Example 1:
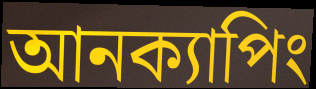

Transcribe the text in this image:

আনক্যাপিং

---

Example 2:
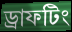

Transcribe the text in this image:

ড্রাফটিং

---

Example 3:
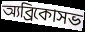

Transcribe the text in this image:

অ্যব্রিকোসভ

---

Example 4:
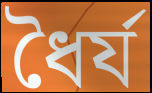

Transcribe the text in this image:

ধৈর্য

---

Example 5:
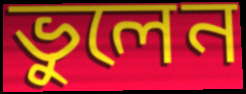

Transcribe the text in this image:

ভুলেন